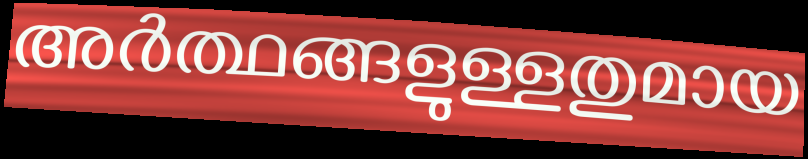
അർത്ഥങ്ങളുള്ളതുമായ